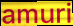
amuri